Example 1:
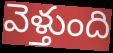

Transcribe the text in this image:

వెళ్తుంది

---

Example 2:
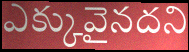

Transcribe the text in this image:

ఎక్కువైనదని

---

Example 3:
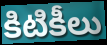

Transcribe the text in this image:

కిటికీలు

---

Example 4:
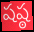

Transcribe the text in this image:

షష్ఠ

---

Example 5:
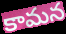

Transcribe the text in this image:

కామన